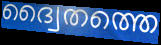
ദ്വൈതത്തെ